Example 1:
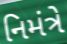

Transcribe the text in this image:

નિમંત્રે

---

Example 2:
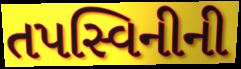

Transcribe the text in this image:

તપસ્વિનીની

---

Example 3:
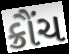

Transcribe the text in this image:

ક્રૌંચ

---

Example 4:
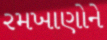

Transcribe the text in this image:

રમખાણોને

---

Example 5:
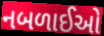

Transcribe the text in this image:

નબળાઈઓ